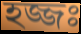
হজ্জঃ